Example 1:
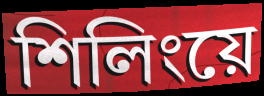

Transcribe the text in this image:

শিলিংয়ে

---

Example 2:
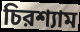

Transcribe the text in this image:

চিরশ্যাম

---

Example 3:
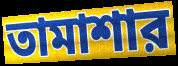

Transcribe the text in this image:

তামাশার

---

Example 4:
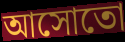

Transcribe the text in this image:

আসোতো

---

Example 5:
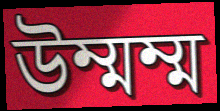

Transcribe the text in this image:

উম্মম্ম